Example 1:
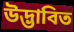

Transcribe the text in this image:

উদ্ভাবিত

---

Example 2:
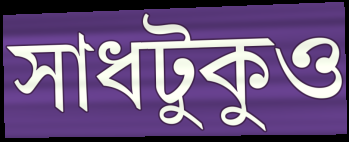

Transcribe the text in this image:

সাধটুকুও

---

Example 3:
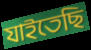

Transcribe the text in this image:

যাইতেছি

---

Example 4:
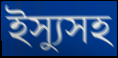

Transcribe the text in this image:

ইস্যুসহ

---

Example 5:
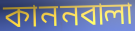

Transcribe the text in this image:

কাননবালা